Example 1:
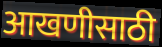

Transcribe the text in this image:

आखणीसाठी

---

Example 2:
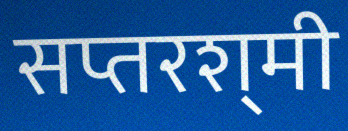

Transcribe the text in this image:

सप्तरश्मी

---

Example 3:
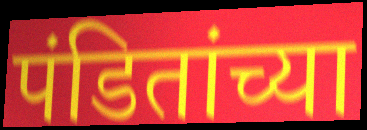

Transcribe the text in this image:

पंडितांच्या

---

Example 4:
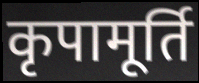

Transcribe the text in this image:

कृपामूर्ति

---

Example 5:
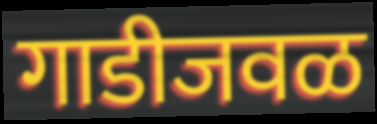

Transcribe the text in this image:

गाडीजवळ